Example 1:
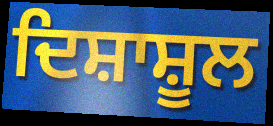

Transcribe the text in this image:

ਦਿਸ਼ਾਸ਼ੂਲ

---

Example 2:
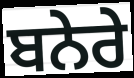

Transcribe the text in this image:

ਬਨੇਰੇ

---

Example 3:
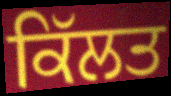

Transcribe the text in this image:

ਕਿੱਲਤ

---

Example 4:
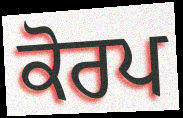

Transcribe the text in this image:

ਕੋਰਪ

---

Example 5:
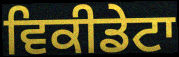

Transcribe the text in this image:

ਵਿਕੀਡੇਟਾ